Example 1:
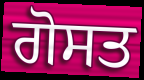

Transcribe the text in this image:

ਗੋਸਤ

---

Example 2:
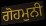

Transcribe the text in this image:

ਗੋਹਮੁਨੀ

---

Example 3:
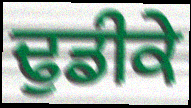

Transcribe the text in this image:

ਢੁਡੀਕੇ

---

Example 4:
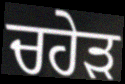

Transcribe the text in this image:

ਚਹੇੜ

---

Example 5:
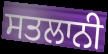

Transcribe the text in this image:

ਸਤਲਾਨੀ